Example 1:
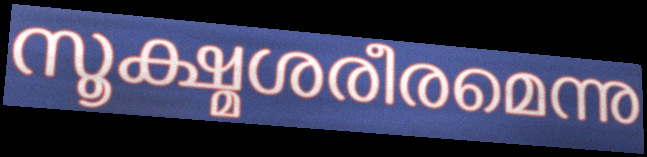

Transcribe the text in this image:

സൂക്ഷ്മശരീരമെന്നു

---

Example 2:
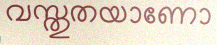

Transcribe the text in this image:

വസ്തുതയാണോ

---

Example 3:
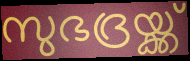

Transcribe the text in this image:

സുഭദ്രയ്ക്ക്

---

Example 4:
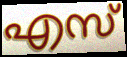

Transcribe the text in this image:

എസ്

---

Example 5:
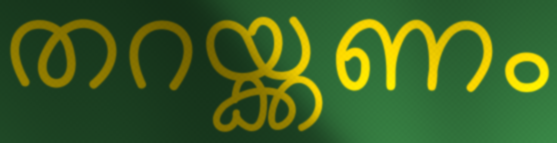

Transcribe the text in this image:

തറയ്ക്കണം